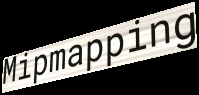
Mipmapping